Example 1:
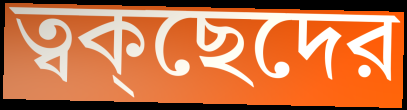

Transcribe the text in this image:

ত্বক্ছেদের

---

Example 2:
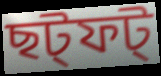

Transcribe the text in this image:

ছট্‌ফট্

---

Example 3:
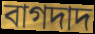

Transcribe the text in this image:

বাগদাদ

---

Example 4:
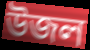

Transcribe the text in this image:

উজল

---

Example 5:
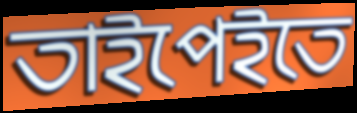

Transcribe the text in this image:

তাইপেইতে